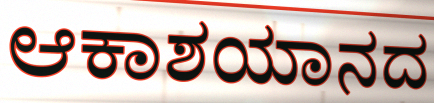
ಆಕಾಶಯಾನದ